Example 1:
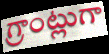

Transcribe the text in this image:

గ్రాంట్లుగా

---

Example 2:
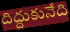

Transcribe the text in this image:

దిద్దుకునేది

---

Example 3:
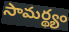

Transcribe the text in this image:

సామర్థ్యం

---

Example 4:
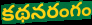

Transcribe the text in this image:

కథనరంగం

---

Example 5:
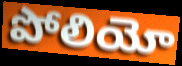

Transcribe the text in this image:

పోలియో